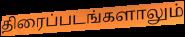
திரைப்படங்களாலும்